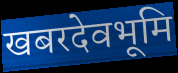
खबरदेवभूमि